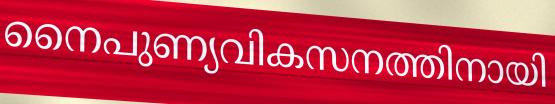
നൈപുണ്യവികസനത്തിനായി